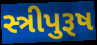
સ્ત્રીપુરૂષ